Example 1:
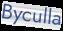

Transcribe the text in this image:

Byculla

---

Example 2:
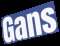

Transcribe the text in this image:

Gans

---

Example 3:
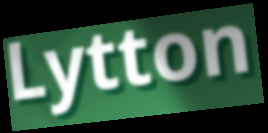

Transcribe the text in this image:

Lytton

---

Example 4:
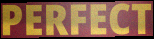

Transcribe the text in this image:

PERFECT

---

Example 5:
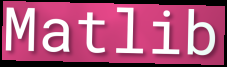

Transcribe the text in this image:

Matlib